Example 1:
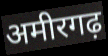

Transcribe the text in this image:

अमीरगढ़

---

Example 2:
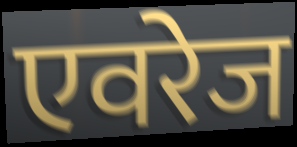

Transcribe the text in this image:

एवरेज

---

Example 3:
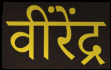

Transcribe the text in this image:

वींरेंद्र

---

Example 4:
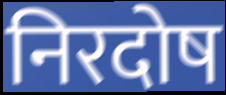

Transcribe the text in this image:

निरदोष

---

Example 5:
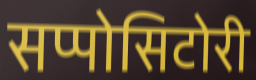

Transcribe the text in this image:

सप्पोसिटोरी